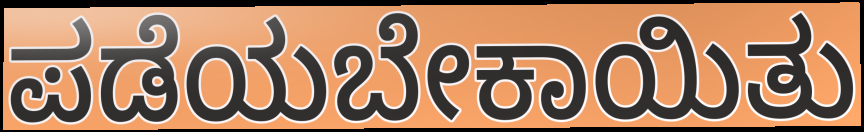
ಪಡೆಯಬೇಕಾಯಿತು